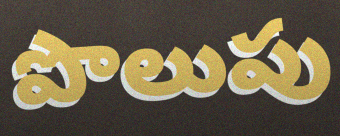
పొలుపు